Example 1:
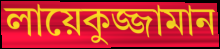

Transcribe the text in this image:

লায়েকুজ্জামান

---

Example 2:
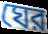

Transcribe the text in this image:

ঘের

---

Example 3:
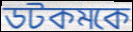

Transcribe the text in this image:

ডটকমকে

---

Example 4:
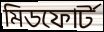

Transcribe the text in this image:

মিডফোর্ট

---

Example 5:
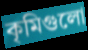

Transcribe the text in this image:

কৃমিগুলো